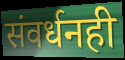
संवर्धनही